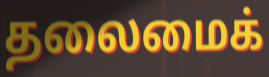
தலைமைக்